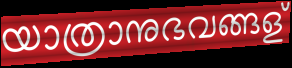
യാത്രാനുഭവങ്ങള്